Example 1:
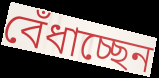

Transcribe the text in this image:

বেঁধাচ্ছেন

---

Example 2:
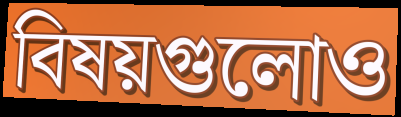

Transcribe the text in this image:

বিষয়গুলোও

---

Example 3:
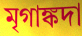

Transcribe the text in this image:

মৃগাঙ্কদা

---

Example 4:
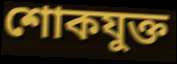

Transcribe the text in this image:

শোকযুক্ত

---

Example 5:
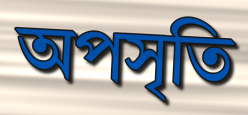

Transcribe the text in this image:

অপসৃতি